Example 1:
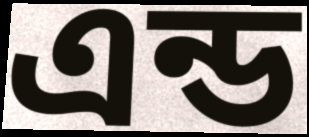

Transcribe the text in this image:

এন্ড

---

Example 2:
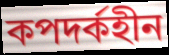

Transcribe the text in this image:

কপদর্কহীন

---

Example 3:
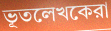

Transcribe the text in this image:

ভূতলেখকেরা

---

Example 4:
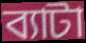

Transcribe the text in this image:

ব্যাটা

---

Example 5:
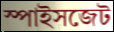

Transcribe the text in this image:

স্পাইসজেট